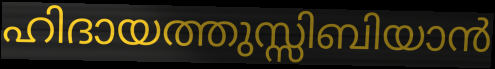
ഹിദായത്തുസ്സിബിയാൻ